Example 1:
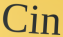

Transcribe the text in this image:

Cin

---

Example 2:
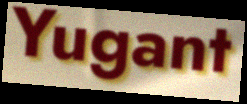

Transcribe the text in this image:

Yugant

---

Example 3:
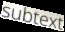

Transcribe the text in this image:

subtext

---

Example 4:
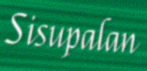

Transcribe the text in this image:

Sisupalan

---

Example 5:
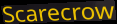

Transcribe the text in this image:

Scarecrow